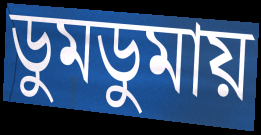
ডুমডুমায়